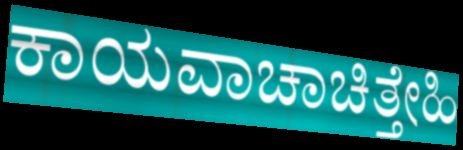
ಕಾಯವಾಚಾಚಿತ್ತೇಹಿ